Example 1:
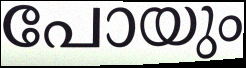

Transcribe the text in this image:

പോയും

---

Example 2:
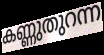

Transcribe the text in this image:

കണ്ണുതുറന്ന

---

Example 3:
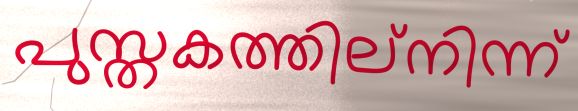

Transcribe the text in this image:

പുസ്തകത്തില്നിന്ന്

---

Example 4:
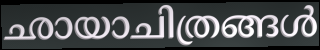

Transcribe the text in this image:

ഛായാചിത്രങ്ങൾ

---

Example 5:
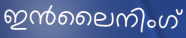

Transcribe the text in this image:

ഇൻലൈനിംഗ്